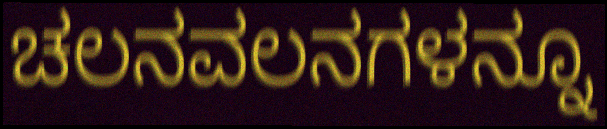
ಚಲನವಲನಗಳನ್ನೂ